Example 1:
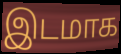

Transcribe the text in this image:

இடமாக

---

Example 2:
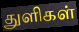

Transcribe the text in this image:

துளிகள்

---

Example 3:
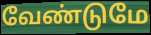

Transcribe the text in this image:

வேண்டுமே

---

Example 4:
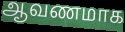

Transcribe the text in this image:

ஆவணமாக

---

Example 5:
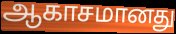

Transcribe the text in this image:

ஆகாசமானது